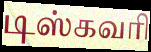
டிஸ்கவரி